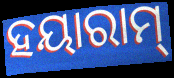
ହୟାରାମ୍